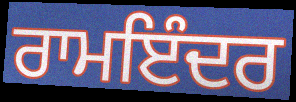
ਰਾਮਇੰਦਰ